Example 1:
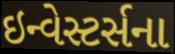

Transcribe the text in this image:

ઇન્વેસ્ટર્સના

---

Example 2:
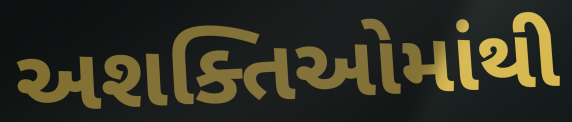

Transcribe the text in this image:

અશક્તિઓમાંથી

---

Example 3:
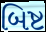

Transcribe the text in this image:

બિષ્ટ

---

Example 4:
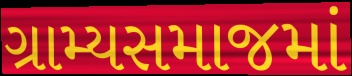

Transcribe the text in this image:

ગ્રામ્યસમાજમાં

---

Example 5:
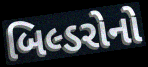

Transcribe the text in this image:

બિલ્ડરોનો